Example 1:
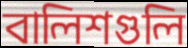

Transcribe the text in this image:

বালিশগুলি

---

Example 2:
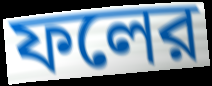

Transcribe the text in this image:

ফলের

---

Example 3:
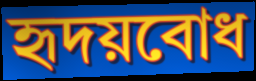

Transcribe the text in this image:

হৃদয়বোধ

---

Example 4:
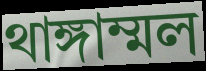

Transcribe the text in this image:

থাঙ্গাম্মল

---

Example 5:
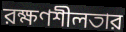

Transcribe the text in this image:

রক্ষণশীলতার